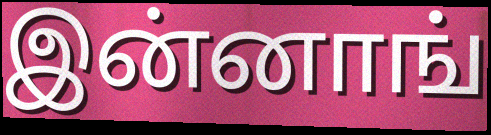
இன்னாங்